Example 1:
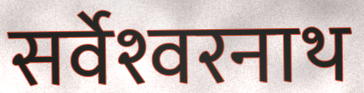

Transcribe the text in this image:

सर्वेश्वरनाथ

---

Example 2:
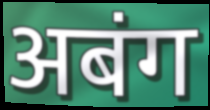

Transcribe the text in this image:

अबंग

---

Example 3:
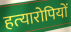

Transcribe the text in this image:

हत्‍यारोपियों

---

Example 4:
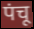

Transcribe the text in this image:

पंचू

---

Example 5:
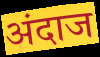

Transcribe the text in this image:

अंदाज